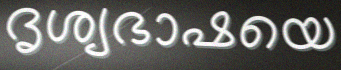
ദൃശ്യഭാഷയെ